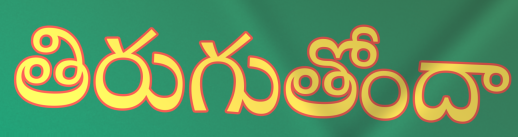
తిరుగుతోందా